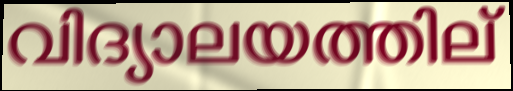
വിദ്യാലയത്തില്